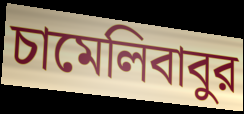
চামেলিবাবুর